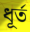
ধূর্ত